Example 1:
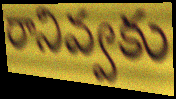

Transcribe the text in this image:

రానివ్వకు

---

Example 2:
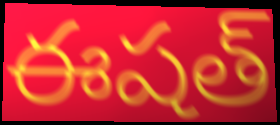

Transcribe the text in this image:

ఈషత్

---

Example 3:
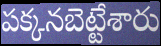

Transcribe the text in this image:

పక్కనబెట్టేశారు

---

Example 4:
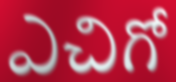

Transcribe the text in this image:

ఎచిగో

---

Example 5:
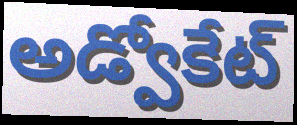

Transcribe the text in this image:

అడ్వోకేట్